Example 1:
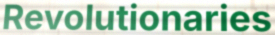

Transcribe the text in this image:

Revolutionaries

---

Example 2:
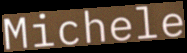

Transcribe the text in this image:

Michele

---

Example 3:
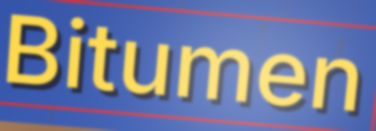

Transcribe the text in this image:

Bitumen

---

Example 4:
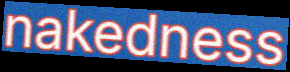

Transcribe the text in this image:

nakedness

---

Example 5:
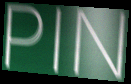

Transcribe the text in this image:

PIN